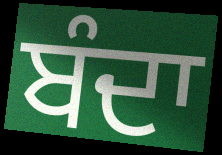
ਬੰਦਾ